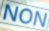
NON